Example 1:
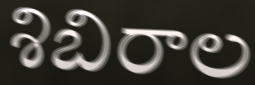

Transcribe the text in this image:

శిబిరాల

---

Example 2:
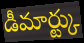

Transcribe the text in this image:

డీమార్ట్కు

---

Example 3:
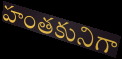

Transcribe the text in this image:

హంతకునిగా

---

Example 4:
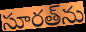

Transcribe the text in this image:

సూరత్‌ను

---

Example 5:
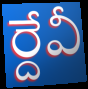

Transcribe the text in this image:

ర్దేవీ